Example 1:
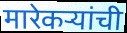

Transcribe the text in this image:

मारेकऱ्यांची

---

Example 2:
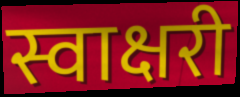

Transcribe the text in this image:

स्वाक्षरी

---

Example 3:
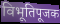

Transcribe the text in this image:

विभूतिपूजक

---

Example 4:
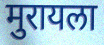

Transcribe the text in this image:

मुरायला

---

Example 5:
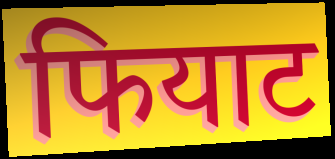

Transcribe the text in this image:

फियाट